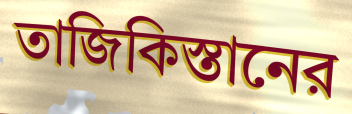
তাজিকিস্তানের